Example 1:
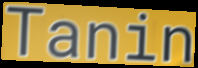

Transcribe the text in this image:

Tanin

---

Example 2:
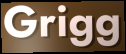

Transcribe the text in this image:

Grigg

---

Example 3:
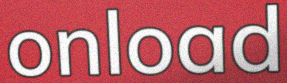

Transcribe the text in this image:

onload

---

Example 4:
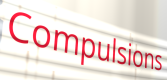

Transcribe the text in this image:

Compulsions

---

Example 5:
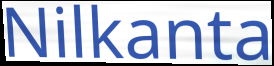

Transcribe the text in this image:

Nilkanta